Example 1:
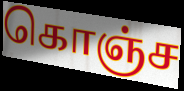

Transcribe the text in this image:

கொஞ்ச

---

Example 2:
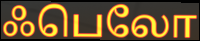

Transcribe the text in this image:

ஃபெலோ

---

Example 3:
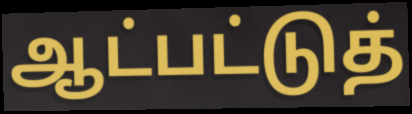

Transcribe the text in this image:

ஆட்பட்டுத்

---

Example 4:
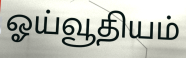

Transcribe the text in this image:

ஓய்வூதியம்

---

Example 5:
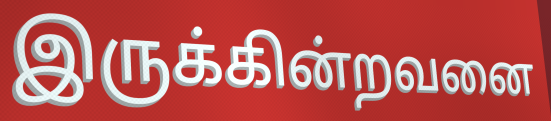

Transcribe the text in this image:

இருக்கின்றவனை